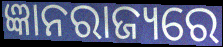
ଜ୍ଞାନରାଜ୍ୟରେ